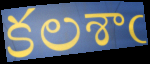
కలశాఁ